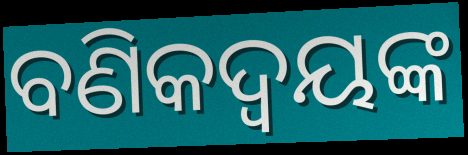
ବଣିକଦ୍ଵୟଙ୍କ